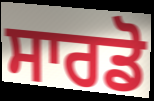
ਸਾਰਡੋ